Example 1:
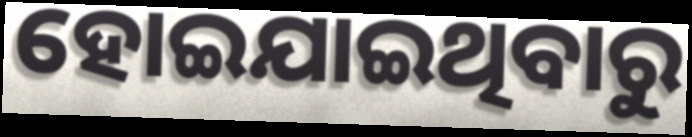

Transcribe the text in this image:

ହୋଇଯାଇଥିବାରୁ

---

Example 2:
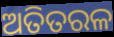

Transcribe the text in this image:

ଅତିତରଳ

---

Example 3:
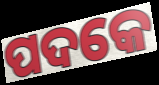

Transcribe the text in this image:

ପଦକେ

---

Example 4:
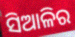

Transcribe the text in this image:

ସିଆଳିର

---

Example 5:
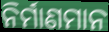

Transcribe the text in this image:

ନିର୍ମାଣମାନ